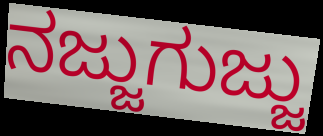
ನಜ್ಜುಗುಜ್ಜು